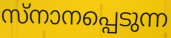
സ്നാനപ്പെടുന്ന